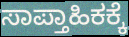
ಸಾಪ್ತಾಹಿಕಕ್ಕೆ